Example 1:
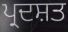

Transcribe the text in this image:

ਪ੍ਰਦਸ਼ਤ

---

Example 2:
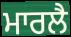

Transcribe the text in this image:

ਮਾਰਲੈ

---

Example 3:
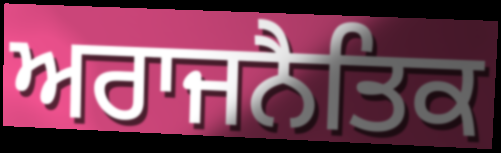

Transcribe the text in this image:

ਅਰਾਜਨੈਤਿਕ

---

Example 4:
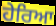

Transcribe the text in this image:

ਹੇਰਿਆ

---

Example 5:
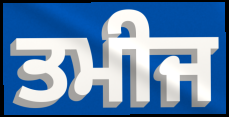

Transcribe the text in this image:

ਤਮੀਜ